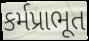
કર્મપ્રાભૂત